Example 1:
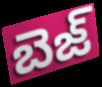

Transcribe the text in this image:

బెజ్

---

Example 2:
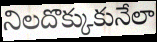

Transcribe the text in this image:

నిలదొక్కుకునేలా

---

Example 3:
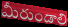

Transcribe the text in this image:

మీరుండాలి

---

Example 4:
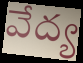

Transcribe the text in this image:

వేద్య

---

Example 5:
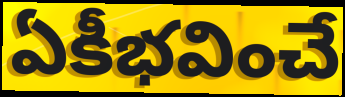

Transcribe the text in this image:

ఏకీభవించే